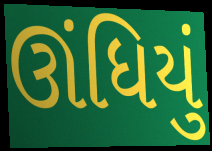
ઊંધિયું